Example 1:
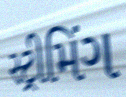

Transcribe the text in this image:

સ્ટ્રીમિંગ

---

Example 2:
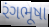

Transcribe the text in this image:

રંગભૂષા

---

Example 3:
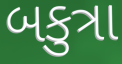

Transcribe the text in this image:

બકુત્રા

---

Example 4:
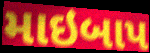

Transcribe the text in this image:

માઇબાપ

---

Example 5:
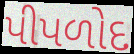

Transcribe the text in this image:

પીપળોદ